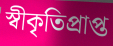
স্বীকৃতিপ্ৰাপ্ত